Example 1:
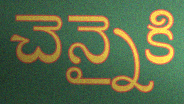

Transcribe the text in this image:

చెన్నైకి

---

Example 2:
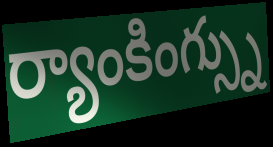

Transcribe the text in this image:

ర్యాంకింగ్స్ను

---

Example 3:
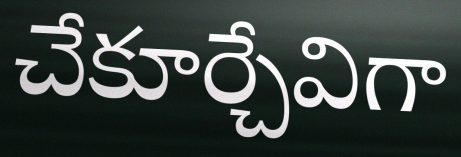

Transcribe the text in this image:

చేకూర్చేవిగా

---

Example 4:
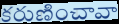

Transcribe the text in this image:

కరుణించావా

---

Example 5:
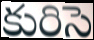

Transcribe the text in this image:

కురిసె